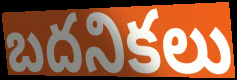
బదనికలు